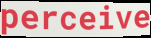
perceive